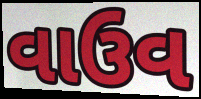
વાઉવ